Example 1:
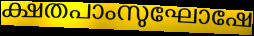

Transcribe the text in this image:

ക്ഷതപാംസുഘോഷേ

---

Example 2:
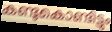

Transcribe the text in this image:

കണ്ടുകൊണ്ടിട്ടും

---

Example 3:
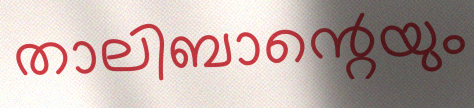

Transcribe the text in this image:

താലിബാന്റെയും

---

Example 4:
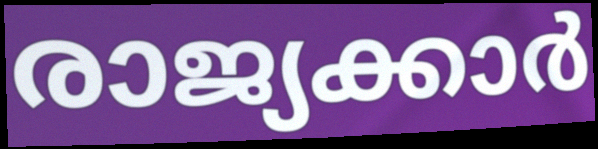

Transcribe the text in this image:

രാജ്യക്കാർ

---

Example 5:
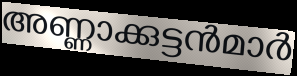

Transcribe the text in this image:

അണ്ണാക്കുട്ടൻമാർ